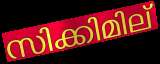
സിക്കിമില്